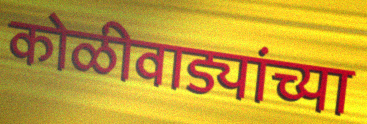
कोळीवाड्यांच्या